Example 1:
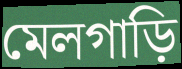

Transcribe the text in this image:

মেলগাড়ি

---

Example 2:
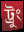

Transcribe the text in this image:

ট্রুং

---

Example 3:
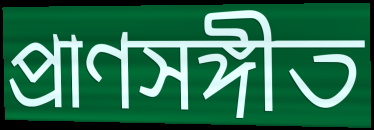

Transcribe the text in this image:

প্রাণসঙ্গীত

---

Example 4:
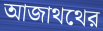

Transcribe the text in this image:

আজাথথের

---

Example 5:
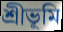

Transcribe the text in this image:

শ্রীভূমি